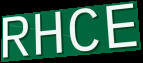
RHCE